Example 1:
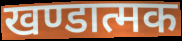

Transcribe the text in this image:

खण्डात्मक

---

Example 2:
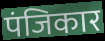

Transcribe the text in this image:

पंजिकार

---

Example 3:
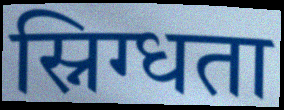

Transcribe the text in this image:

स्निग्धता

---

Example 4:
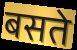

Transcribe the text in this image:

बसते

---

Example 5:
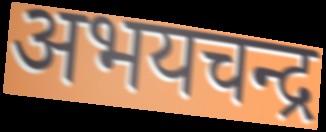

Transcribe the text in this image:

अभयचन्द्र